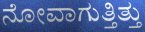
ನೋವಾಗುತ್ತಿತ್ತು